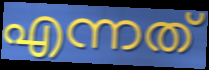
എന്നത്